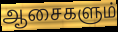
ஆசைகளும்